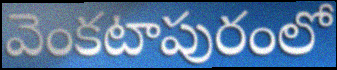
వెంకటాపురంలో